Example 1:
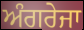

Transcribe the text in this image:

ਅੰਗਰੇਜਾ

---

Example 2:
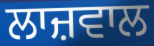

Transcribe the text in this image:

ਲਾਜ਼ਵਾਲ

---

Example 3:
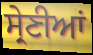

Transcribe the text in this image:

ਸ੍ਰੇਣੀਆਂ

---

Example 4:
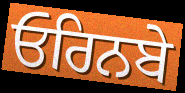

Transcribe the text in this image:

ਓਰਿਨਬੇ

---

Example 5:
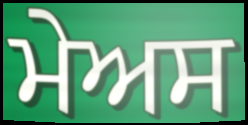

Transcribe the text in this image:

ਮੇਅਸ